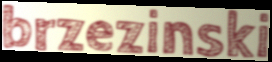
brzezinski